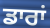
ਡਾਰਾਂ